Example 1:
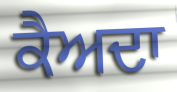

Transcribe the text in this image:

ਕੈਅਦਾ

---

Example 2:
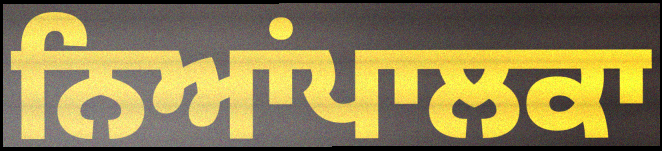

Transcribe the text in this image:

ਨਿਆਂਪਾਲਕਾ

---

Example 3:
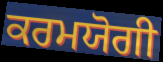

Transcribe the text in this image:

ਕਰਮਯੋਗੀ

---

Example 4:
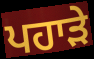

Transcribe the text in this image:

ਪਹਾੜੇ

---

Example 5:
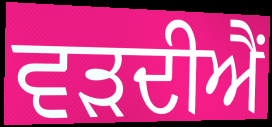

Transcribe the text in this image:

ਵੜਦੀਐਂ